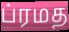
ப்ரமத